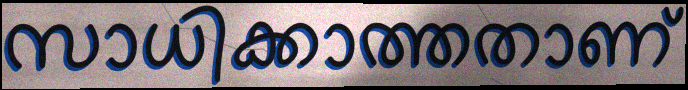
സാധിക്കാത്തതാണ്